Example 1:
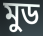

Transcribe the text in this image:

মুড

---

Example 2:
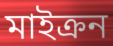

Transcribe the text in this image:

মাইক্রন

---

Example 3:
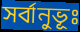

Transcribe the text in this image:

সর্বানুভূঃ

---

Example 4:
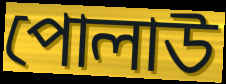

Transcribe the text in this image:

পোলাউ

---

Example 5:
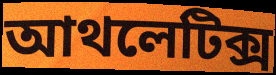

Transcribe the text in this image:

আথলেটিক্স